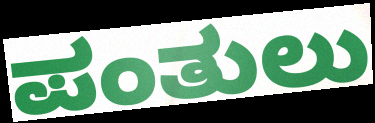
ಪಂತುಲು